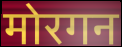
मोरगन